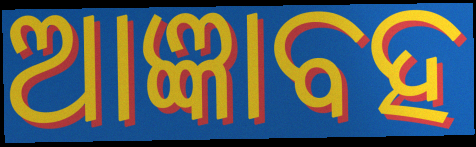
ଆଜ୍ଞାବହ